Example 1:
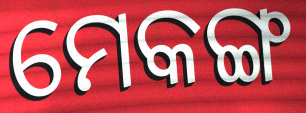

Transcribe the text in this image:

ମେକଙ୍ଗ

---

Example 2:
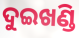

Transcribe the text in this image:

ଦୁଇଖଣ୍ଡି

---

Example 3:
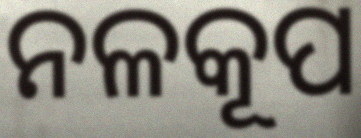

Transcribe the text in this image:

ନଳକୂପ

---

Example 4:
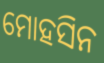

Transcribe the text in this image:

ମୋହସିନ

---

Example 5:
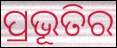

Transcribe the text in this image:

ପ୍ରଭୂତିର